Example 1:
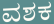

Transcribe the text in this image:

ವಶಕ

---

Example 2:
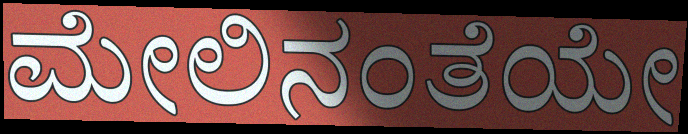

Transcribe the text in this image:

ಮೇಲಿನಂತೆಯೇ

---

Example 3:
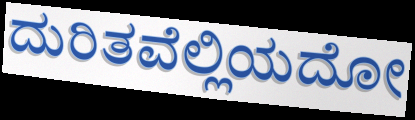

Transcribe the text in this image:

ದುರಿತವೆಲ್ಲಿಯದೋ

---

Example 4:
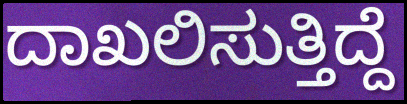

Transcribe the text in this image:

ದಾಖಲಿಸುತ್ತಿದ್ದೆ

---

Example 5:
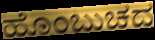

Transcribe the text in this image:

ಹೊಂಬುಚದ